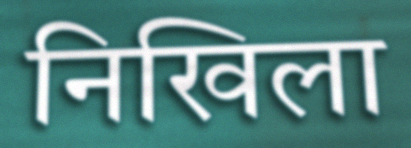
निखिला